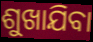
ଶୁଖାଯିବା